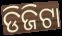
ଡିଜିଟା